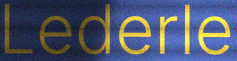
Lederle